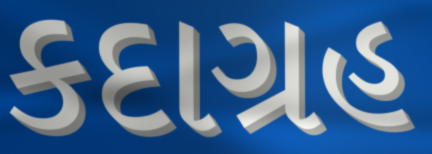
કદાગ્રહ